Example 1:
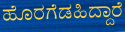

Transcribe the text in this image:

ಹೊರಗೆಡಹಿದ್ದಾರೆ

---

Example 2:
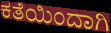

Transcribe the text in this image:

ಕತೆಯಿಂದಾಗಿ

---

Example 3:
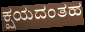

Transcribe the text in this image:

ಕ್ಷಯದಂತಹ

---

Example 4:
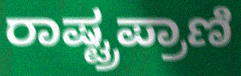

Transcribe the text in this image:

ರಾಷ್ಟ್ರಪ್ರಾಣಿ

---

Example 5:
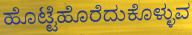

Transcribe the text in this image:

ಹೊಟ್ಟೆಹೊರೆದುಕೊಳ್ಳುವ